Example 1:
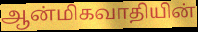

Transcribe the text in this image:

ஆன்மிகவாதியின்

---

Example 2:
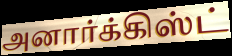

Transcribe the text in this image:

அனார்க்கிஸ்ட்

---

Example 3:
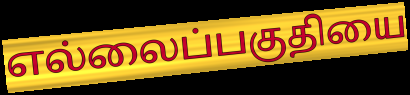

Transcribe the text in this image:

எல்லைப்பகுதியை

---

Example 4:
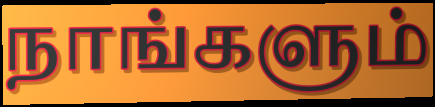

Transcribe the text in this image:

நாங்களும்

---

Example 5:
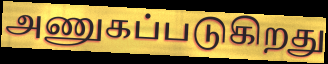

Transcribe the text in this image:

அணுகப்படுகிறது